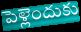
పెళ్లెందుకు